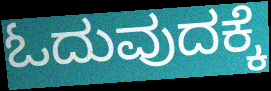
ಓದುವುದಕ್ಕೆ